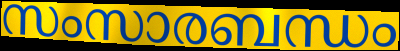
സംസാരബന്ധം